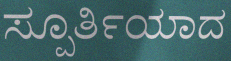
ಸ್ಪೂರ್ತಿಯಾದ